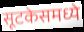
सूटकेसमध्ये